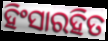
ହିଂସାରହିତ